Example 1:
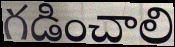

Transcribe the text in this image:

గడించాలి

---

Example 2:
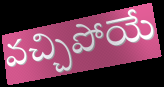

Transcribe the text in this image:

వచ్చిపోయే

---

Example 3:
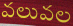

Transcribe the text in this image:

వలువల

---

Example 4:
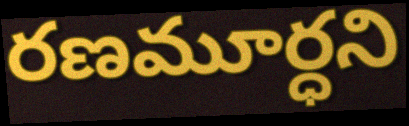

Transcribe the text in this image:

రణమూర్ధని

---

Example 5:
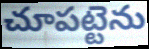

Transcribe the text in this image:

చూపట్టెను